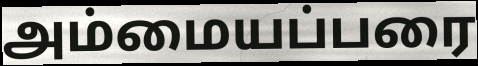
அம்மையப்பரை